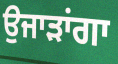
ਉਜਾੜਾਂਗਾ